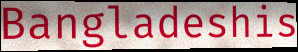
Bangladeshis